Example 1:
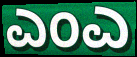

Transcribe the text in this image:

ಎಂಎ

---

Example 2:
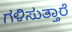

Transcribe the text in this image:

ಗಳಿಸುತ್ತಾರೆ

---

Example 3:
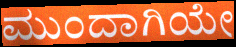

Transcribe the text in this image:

ಮುಂದಾಗಿಯೇ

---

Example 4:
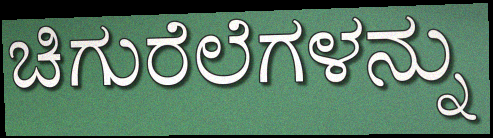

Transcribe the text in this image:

ಚಿಗುರೆಲೆಗಳನ್ನು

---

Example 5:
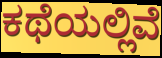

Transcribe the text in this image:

ಕಥೆಯಲ್ಲಿವೆ